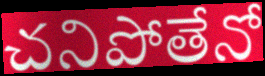
చనిపోతేనో